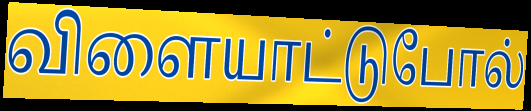
விளையாட்டுபோல்